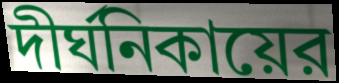
দীর্ঘনিকায়ের